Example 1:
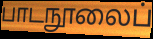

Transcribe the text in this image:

பாடநூலைப்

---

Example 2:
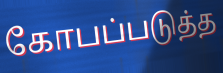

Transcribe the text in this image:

கோபப்படுத்த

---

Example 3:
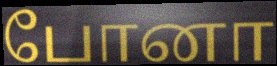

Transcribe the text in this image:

போனா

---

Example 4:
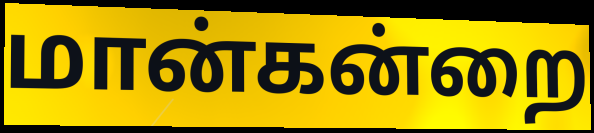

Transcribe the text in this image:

மான்கன்றை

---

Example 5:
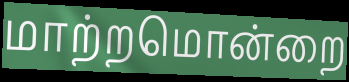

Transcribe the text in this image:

மாற்றமொன்றை